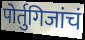
पोर्तुगिजांचं